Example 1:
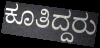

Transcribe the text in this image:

ಕೂತಿದ್ದರು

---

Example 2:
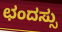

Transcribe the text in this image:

ಛಂದಸ್ಸು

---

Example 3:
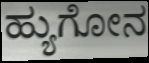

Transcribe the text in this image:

ಹ್ಯುಗೋನ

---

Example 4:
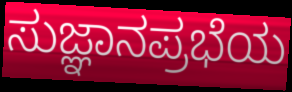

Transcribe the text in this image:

ಸುಜ್ಞಾನಪ್ರಭೆಯ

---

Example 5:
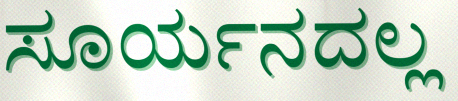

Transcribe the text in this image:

ಸೂರ್ಯನದಲ್ಲ